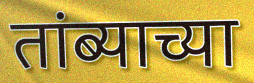
तांब्याच्या